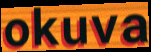
okuva